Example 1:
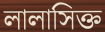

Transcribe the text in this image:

লালাসিক্ত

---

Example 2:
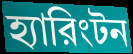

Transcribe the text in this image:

হ্যারিংটন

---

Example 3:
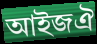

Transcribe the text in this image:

আইজঐ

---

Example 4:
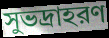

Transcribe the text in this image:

সুভদ্রাহরণ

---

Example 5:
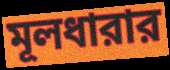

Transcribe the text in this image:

মূলধারার